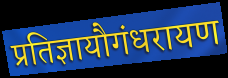
प्रतिज्ञायौगंधरायण